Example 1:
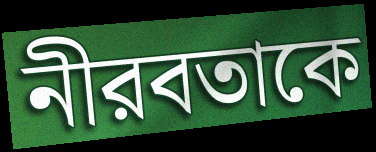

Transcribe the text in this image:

নীরবতাকে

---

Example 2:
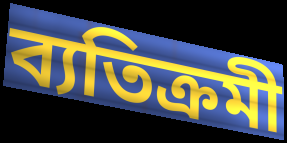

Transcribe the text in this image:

ব্যতিক্রমী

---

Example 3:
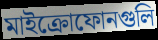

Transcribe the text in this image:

মাইক্রোফোনগুলি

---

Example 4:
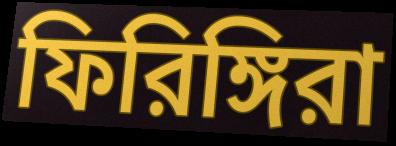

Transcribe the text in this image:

ফিরিঙ্গিরা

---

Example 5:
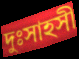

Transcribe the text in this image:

দুঃসাহসী